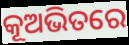
କୂଅଭିତରେ